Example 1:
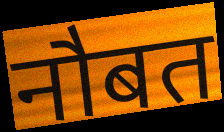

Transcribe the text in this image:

नौबत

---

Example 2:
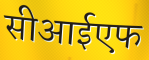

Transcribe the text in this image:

सीआईएफ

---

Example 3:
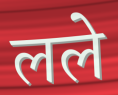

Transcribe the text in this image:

लले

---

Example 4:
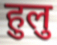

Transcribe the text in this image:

हुलु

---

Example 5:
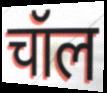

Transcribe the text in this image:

चॉल